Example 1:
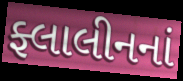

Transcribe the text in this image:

ફ્લાલીનનાં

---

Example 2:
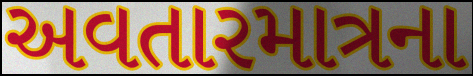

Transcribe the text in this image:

અવતારમાત્રના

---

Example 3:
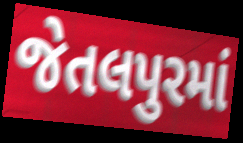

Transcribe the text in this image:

જેતલપુરમાં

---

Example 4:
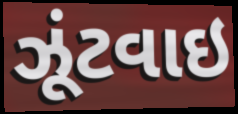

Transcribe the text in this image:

ઝૂંટવાઇ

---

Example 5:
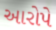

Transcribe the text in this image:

આરોપે